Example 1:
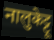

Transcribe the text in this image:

नालुकेट्टू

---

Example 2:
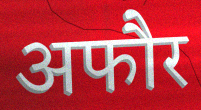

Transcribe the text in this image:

अफौर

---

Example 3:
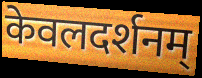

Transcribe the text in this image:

केवलदर्शनम्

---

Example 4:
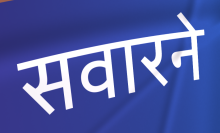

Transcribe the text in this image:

सवारने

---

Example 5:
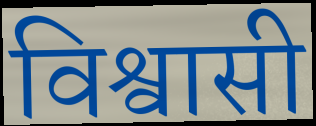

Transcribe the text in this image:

विश्वासी